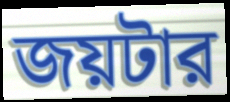
জয়টার